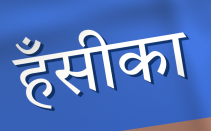
हँसीका